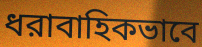
ধরাবাহিকভাবে